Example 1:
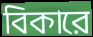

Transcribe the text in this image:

বিকারে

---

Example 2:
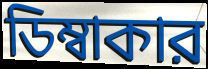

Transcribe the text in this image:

ডিম্বাকার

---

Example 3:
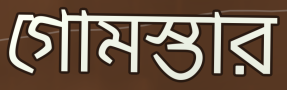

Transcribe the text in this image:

গোমস্তার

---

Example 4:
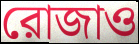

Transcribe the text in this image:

রোজাও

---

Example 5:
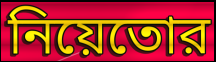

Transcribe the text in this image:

নিয়েতোর